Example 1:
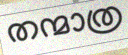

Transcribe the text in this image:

തന്മാത്ര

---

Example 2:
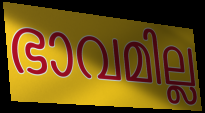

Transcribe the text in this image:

ഭാവമില്ല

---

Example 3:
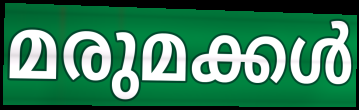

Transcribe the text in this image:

മരുമക്കൾ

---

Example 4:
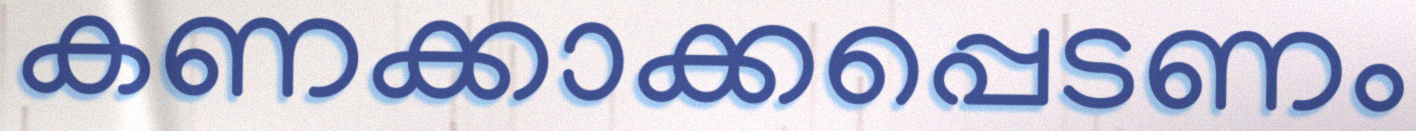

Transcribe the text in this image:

കണക്കാക്കപ്പെടണം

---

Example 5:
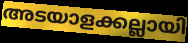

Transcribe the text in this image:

അടയാളക്കല്ലായി